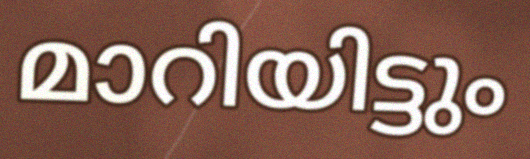
മാറിയിട്ടും